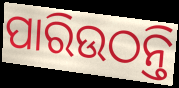
ପାରିଉଠନ୍ତି